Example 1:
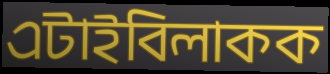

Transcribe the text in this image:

এটাইবিলাকক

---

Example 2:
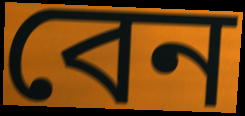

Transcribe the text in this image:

বেন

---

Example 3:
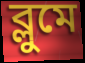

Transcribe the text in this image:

ব্লুমে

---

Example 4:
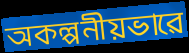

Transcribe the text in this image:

অকল্পনীয়ভাৱে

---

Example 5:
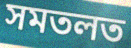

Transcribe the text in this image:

সমতলত